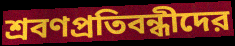
শ্রবণপ্রতিবন্ধীদের